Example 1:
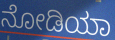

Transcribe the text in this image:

ನೋಡಿಯಾ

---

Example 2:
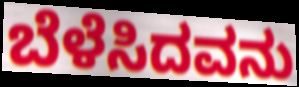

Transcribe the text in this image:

ಬೆಳೆಸಿದವನು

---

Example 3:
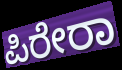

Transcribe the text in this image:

ಪಿರೇರಾ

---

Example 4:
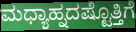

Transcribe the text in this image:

ಮಧ್ಯಾಹ್ನದಷ್ಟೊತ್ತಿಗೆ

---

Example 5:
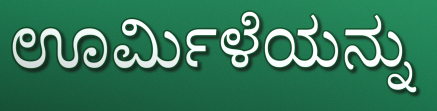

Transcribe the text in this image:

ಊರ್ಮಿಳೆಯನ್ನು